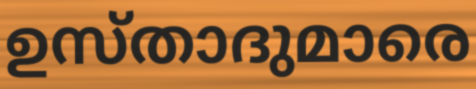
ഉസ്താദുമാരെ